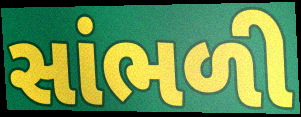
સાંભળી